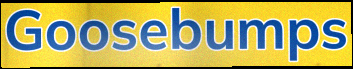
Goosebumps